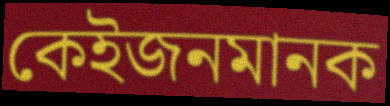
কেইজনমানক